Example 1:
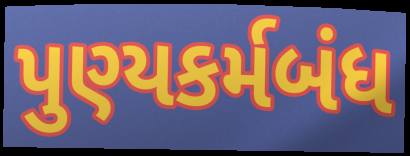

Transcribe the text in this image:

પુણ્યકર્મબંધ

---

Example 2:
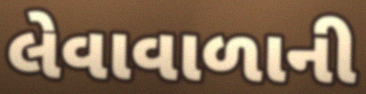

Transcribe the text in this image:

લેવાવાળાની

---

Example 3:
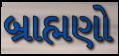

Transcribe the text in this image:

બ્રાહ્મણો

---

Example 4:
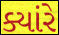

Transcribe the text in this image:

ક્યાંરે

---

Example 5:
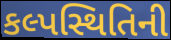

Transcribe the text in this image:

કલ્પસ્થિતિની